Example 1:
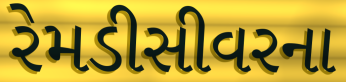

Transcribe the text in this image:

રેમડીસીવરના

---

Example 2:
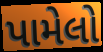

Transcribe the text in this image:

પામેલો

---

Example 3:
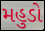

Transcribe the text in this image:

મહુડો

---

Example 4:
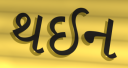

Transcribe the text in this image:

થઈન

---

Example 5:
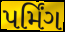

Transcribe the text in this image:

પર્મિંગ